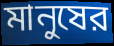
মানুষের